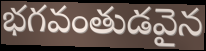
భగవంతుడవైన